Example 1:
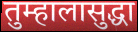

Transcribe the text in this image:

तुम्हालासुद्धा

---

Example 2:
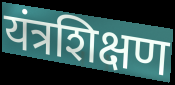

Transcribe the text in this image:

यंत्रशिक्षण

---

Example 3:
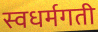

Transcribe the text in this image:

स्वधर्मगती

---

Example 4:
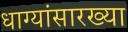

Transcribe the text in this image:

धाग्यांसारख्या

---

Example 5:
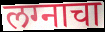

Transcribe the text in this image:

लग्नाचा